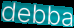
debba